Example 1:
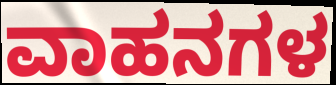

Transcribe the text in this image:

ವಾಹನಗಳ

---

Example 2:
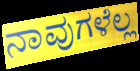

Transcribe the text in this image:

ನಾವುಗಳೆಲ್ಲ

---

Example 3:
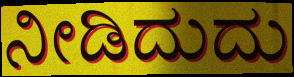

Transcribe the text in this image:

ನೀಡಿದುದು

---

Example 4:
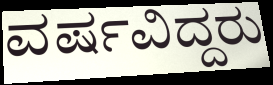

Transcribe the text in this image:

ವರ್ಷವಿದ್ದರು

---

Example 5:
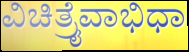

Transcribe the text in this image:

ವಿಚಿತ್ರೈವಾಭಿಧಾ